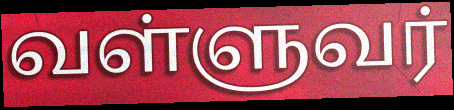
வள்ளுவர்